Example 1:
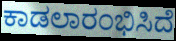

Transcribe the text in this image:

ಕಾಡಲಾರಂಭಿಸಿದೆ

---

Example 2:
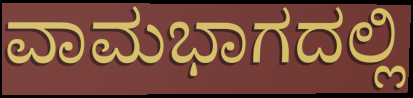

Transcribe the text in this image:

ವಾಮಭಾಗದಲ್ಲಿ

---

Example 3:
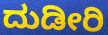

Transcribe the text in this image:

ದುಡೀರಿ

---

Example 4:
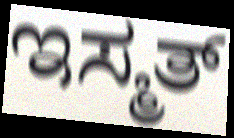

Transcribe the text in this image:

ಇಸ್ಮತ್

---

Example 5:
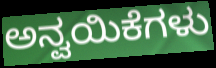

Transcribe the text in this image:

ಅನ್ವಯಿಕೆಗಳು